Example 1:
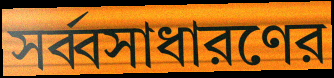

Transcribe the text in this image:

সর্ব্বসাধারণের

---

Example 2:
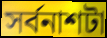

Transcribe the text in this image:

সর্বনাশটা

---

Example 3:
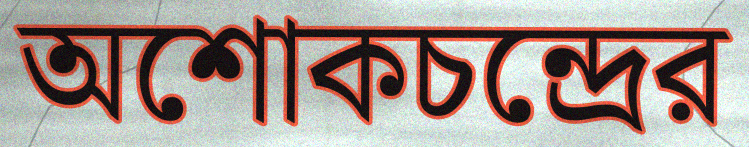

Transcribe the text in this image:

অশোকচন্দ্রের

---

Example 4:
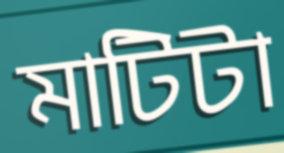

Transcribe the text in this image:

মাটিটা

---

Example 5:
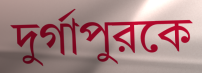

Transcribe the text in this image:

দুর্গাপুরকে